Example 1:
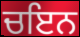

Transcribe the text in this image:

ਚਇਨ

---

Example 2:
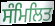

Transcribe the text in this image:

ਸੰਮਿਲਿਤ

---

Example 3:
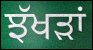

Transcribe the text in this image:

ਝੱਖੜਾਂ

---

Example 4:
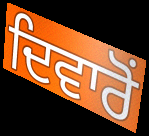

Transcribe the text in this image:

ਦਿਵਾਰੋਂ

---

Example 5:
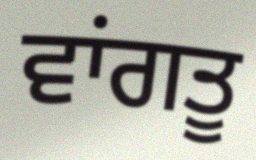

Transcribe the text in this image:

ਵਾਂਗਤੂ